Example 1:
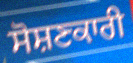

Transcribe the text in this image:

ਸੋਸ਼ਣਕਾਰੀ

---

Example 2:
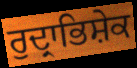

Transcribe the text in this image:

ਰੁਦ੍ਰਾਭਿਸ਼ੇਕ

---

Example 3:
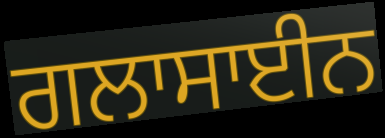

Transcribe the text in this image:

ਗਲਾਸਾਈਨ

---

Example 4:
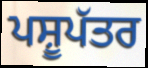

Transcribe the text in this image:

ਪਸ਼ੂਪੱਤਰ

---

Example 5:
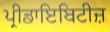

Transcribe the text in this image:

ਪ੍ਰੀਡਾਇਬਿਟੀਜ਼